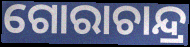
ଗୋରାଚାନ୍ଦ୍ର